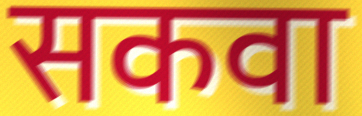
सकवा